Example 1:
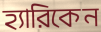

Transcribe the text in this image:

হ্যারিকেন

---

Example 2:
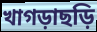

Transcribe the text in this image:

খাগড়াছড়ি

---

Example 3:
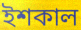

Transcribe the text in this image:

ইশকাল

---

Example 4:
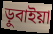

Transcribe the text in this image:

ড়ুবাইয়া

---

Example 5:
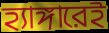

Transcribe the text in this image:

হ্যাঙ্গারেই